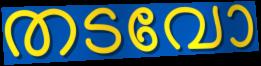
തടവോ